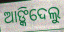
ଆଙ୍କିଦେଲୁ